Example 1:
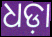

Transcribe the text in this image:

ଧଡ଼ା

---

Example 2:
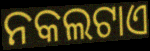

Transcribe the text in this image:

ନକଲଟାଏ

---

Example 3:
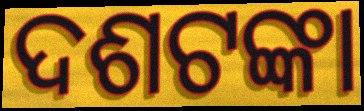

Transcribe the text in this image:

ଦଶଟଙ୍କା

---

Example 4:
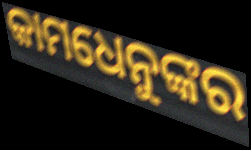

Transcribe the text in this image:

କାମଧେନୁଙ୍କର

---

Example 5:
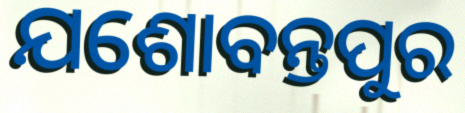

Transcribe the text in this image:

ଯଶୋବନ୍ତପୁର